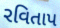
રવિતાપ